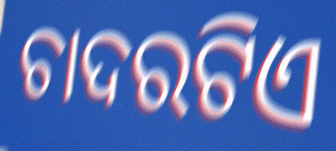
ଚାଦରଟିଏ